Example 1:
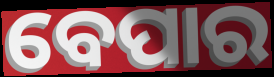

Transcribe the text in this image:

ବେପାର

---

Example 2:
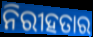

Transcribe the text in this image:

ନିରୀହତାର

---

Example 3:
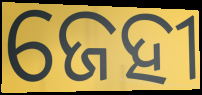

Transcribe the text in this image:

ଜେହୀ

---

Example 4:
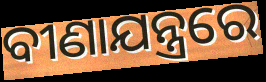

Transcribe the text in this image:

ବୀଣାଯନ୍ତ୍ରରେ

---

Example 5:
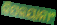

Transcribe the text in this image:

କିସଳୟାନାଂ